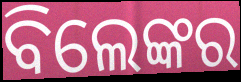
ବିଲେଙ୍କର